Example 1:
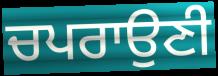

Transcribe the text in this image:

ਚਪਰਾਉਣੀ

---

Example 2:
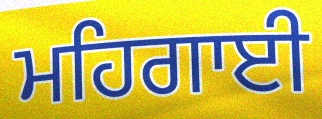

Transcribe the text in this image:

ਮਹਿਗਾਈ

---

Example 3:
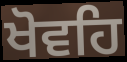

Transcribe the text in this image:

ਖੋਵਹਿ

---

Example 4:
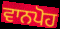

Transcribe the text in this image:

ਵਾਨਪੋਹ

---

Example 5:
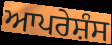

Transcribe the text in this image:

ਆਪਰੇਸ਼ੰਸ